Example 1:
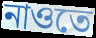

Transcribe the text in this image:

নাওতে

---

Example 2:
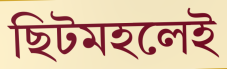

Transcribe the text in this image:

ছিটমহলেই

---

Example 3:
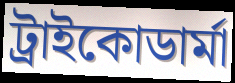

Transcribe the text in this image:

ট্রাইকোডার্মা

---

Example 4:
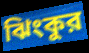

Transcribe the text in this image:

ঝিংকুর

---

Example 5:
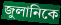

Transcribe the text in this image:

জুলানিকে